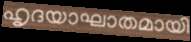
ഹൃദയാഘാതമായി